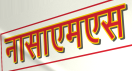
नासाएमएस